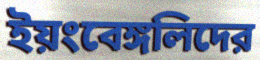
ইয়ংবেঙ্গলিদের